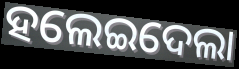
ହଲେଇଦେଲା